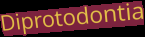
Diprotodontia